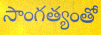
సాంగత్యంతో